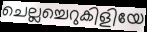
ചെല്ലച്ചെറുകിളിയേ